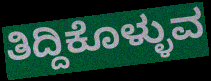
ತಿದ್ದಿಕೊಳ್ಳುವ